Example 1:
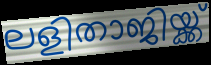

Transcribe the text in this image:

ലളിതാജിയ്ക്ക്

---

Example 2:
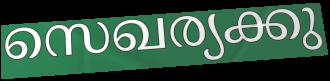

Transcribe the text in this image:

സെഖര്യക്കു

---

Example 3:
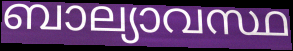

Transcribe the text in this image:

ബാല്യാവസ്ഥ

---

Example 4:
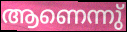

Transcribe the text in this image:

ആണെന്നു്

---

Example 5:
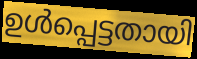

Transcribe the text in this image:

ഉൾപ്പെട്ടതായി